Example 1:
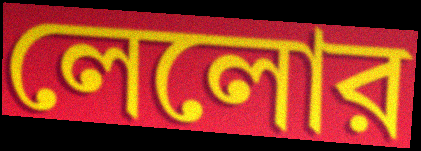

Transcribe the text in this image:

লেলোর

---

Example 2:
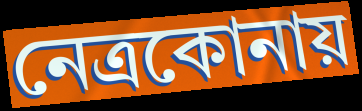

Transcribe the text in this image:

নেত্রকোনায়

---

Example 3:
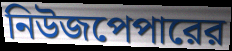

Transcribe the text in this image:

নিউজপেপারের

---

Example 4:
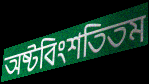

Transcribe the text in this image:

অষ্টবিংশতিতম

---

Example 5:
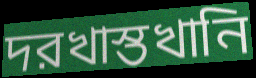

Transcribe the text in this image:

দরখাস্তখানি